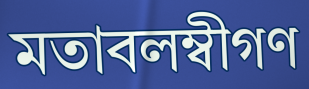
মতাবলম্বীগণ